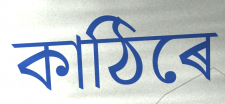
কাঠিৰে